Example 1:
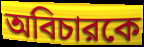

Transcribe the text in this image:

অবিচারকে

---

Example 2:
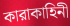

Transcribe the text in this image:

কারাকাহিনী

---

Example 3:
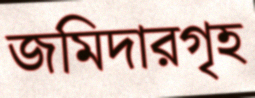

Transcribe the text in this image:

জমিদারগৃহ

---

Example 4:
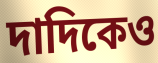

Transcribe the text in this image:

দাদিকেও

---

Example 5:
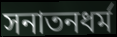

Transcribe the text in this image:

সনাতনধর্ম